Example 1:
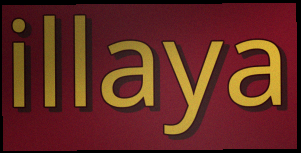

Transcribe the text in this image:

illaya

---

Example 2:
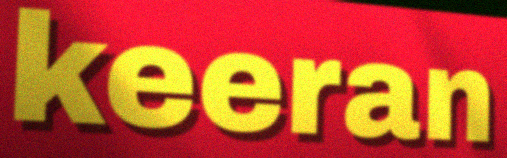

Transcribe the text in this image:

keeran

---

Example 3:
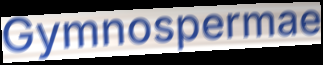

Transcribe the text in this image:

Gymnospermae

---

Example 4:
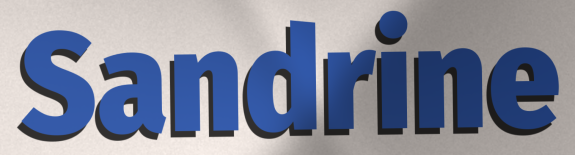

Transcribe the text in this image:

Sandrine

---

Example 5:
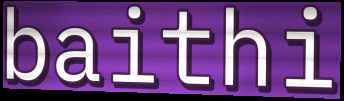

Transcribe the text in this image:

baithi